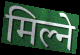
मिल्ने